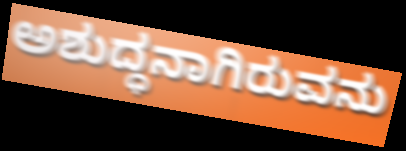
ಅಶುದ್ಧನಾಗಿರುವನು